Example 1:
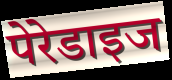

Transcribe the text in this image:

पेरेडाइज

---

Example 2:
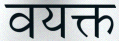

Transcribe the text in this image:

वयक्त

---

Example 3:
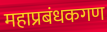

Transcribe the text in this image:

महाप्रबंधकगण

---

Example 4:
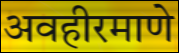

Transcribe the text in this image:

अवहीरमाणे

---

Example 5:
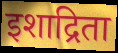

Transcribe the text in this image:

इशाद्रिता